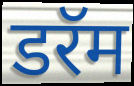
डरॅम